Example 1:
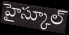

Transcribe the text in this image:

హైస్కూల్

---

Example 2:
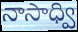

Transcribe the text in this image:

నాసాధ్వి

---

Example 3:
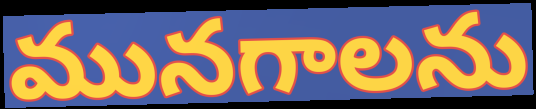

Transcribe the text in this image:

మునగాలను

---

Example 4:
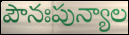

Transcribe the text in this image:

పౌనఃపున్యాల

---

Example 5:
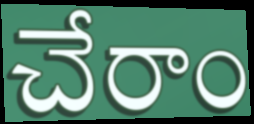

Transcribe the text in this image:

చేరాం